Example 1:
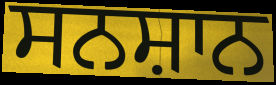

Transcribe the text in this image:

ਸਨਸ਼ਾਨ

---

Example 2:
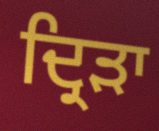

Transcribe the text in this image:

ਦ੍ਰਿੜਾ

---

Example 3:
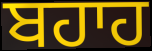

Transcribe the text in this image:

ਬਹਾਹ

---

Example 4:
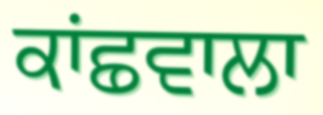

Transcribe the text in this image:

ਕਾਂਛਵਾਲਾ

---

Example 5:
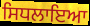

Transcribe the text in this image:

ਸਿਧਲਾਇਆ